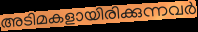
അടിമകളായിരിക്കുന്നവർ